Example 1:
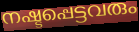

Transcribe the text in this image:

നഷ്ടപ്പെട്ടവരും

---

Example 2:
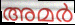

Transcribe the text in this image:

അമർ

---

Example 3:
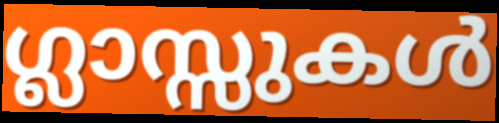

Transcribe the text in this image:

ഗ്ലാസ്സുകൾ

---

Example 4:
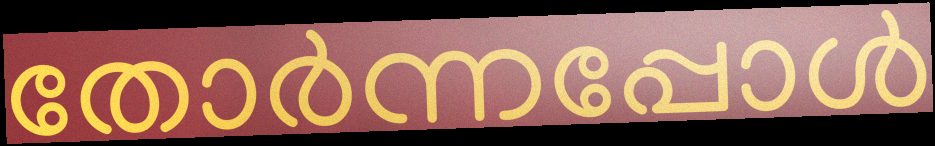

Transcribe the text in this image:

തോർന്നപ്പോൾ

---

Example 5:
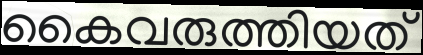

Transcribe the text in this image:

കൈവരുത്തിയത്